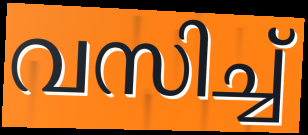
വസിച്ച്